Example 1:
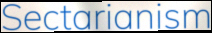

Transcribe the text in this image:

Sectarianism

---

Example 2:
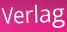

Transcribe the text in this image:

Verlag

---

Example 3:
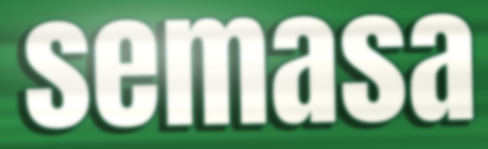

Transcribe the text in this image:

semasa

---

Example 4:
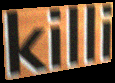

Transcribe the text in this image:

killi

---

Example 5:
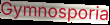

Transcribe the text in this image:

Gymnosporia